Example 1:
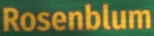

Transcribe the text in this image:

Rosenblum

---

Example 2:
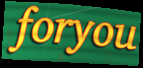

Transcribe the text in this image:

foryou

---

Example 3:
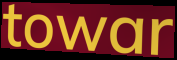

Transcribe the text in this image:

towar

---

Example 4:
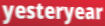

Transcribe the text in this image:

yesteryear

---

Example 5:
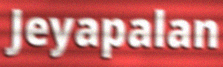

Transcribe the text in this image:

Jeyapalan